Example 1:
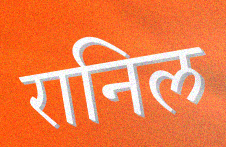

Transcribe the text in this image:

रानिल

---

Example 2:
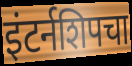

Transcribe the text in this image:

इंटर्नशिपचा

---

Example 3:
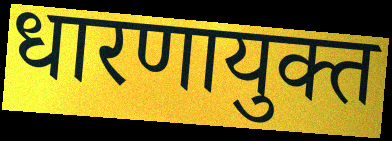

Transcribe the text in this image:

धारणायुक्त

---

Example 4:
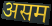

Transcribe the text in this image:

असम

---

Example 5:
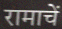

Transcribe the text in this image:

रामाचें